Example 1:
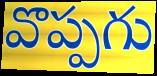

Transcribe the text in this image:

వొప్పగు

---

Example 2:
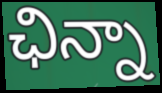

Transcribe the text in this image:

ఛిన్నా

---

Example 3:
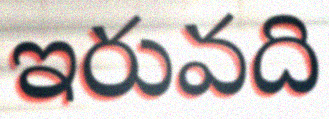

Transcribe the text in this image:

ఇరువది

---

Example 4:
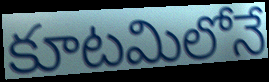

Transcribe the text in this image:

కూటమిలోనే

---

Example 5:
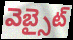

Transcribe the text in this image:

వెబ్సైట్